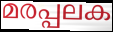
മരപ്പലക